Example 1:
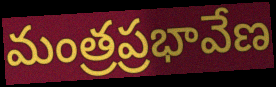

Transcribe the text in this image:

మంత్రప్రభావేణ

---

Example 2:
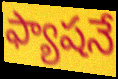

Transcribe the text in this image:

ఫ్యాషనే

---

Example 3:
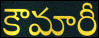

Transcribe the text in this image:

కౌమారీ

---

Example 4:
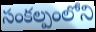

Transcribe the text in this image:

సంకల్పంలోని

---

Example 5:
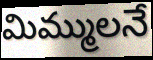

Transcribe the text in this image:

మిమ్ములనే